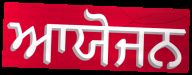
ਆਯੋਜਨ